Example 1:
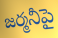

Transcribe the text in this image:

జర్మనీపై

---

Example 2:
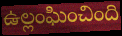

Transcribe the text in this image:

ఉల్లంఘించింది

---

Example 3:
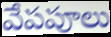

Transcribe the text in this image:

వేపపూలు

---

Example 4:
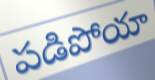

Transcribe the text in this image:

పడిపోయా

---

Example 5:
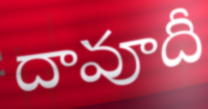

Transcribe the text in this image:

దావూదీ